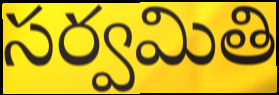
సర్వమితి